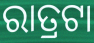
ରାତ୍ରଟା